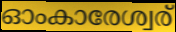
ഓംകാരേശ്വര്